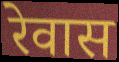
रेवास